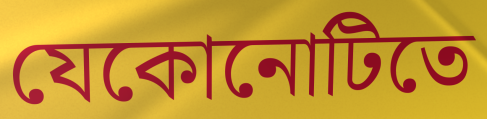
যেকোনোটিতে